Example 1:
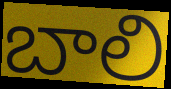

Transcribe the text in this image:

బాలి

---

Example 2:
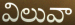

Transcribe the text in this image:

విలువా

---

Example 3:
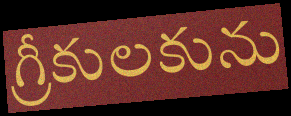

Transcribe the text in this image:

గ్రీకులకును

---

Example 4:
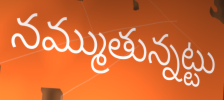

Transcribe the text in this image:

నమ్ముతున్నట్టు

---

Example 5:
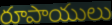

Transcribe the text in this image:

రూపాయులు